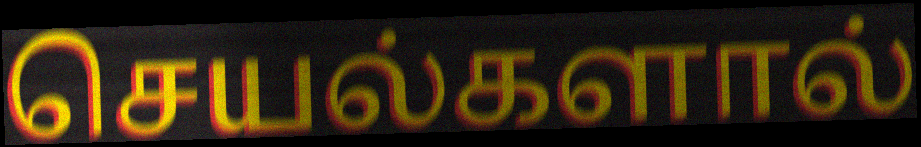
செயல்களால்